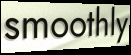
smoothly